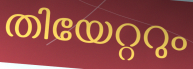
തിയേറ്ററും